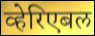
व्हेरिएबल